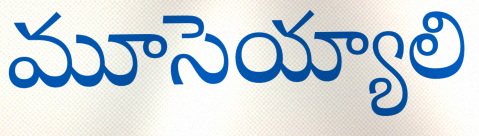
మూసెయ్యాలి